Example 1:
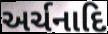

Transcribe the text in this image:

અર્ચનાદિ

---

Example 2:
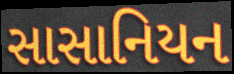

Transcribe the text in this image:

સાસાનિયન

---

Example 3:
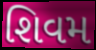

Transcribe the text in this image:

શિવમ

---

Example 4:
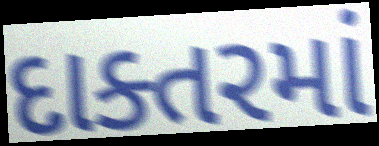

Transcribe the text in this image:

દાક્તરમાં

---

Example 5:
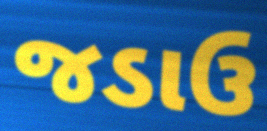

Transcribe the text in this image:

જડાઉ